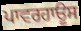
ਪਾਵਰਹਾਊਸ